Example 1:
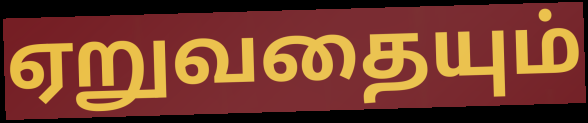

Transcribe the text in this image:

ஏறுவதையும்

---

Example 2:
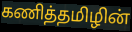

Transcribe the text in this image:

கணித்தமிழின்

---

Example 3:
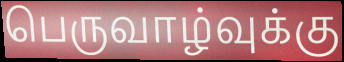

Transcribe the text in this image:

பெருவாழ்வுக்கு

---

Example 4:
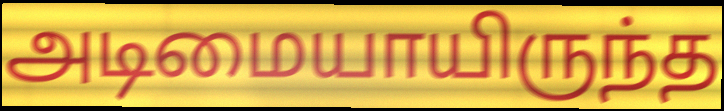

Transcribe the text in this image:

அடிமையாயிருந்த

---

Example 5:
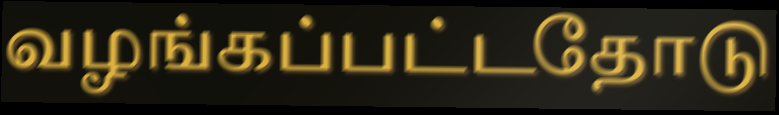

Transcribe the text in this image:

வழங்கப்பட்டதோடு